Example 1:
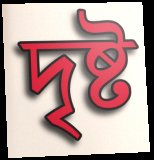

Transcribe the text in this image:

দৃষ্ট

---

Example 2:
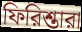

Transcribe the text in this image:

ফিরিশ্তারা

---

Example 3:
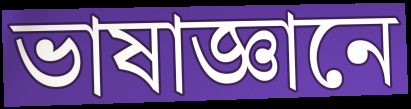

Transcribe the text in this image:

ভাষাজ্ঞানে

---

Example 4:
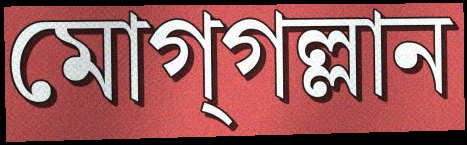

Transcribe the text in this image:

মোগ্‌গল্লান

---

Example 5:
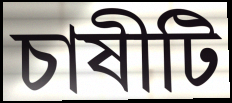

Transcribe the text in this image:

চাষীটি